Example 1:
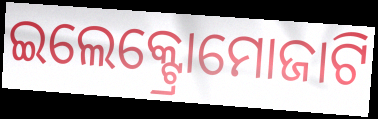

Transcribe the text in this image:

ଇଲେକ୍ଟ୍ରୋମୋଜାଟି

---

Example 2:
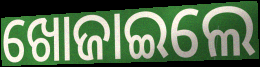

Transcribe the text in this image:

ଖୋଜାଇଲେ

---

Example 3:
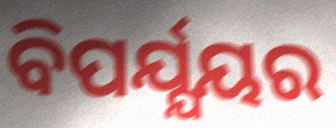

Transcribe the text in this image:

ବିପର୍ଯ୍ଯୟର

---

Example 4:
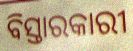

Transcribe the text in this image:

ବିସ୍ତାରକାରୀ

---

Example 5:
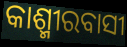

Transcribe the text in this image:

କାଶ୍ମୀରବାସୀ